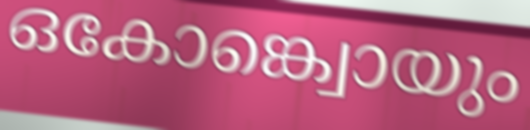
ഒകോങ്ക്വൊയും